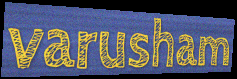
varusham